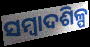
ସମ୍ୱାଦଶିଳ୍ପ